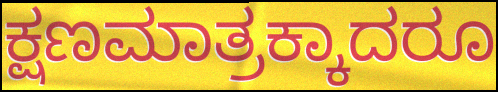
ಕ್ಷಣಮಾತ್ರಕ್ಕಾದರೂ